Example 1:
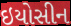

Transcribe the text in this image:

ઇયોસીન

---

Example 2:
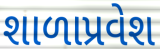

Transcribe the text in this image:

શાળાપ્રવેશ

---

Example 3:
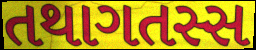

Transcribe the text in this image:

તથાગતસ્સ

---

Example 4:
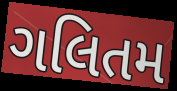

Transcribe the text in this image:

ગલિતમ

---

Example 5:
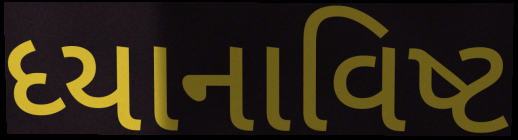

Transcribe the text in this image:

ધ્યાનાવિષ્ટ